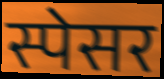
स्पेसर